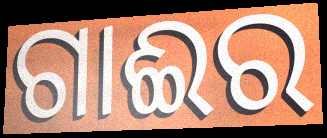
ଗାଈର